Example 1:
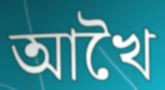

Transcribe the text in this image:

আখৈ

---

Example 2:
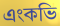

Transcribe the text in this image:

এংকভি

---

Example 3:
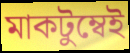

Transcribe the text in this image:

মাকটুম্বেই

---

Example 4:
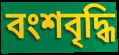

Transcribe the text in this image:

বংশবৃদ্ধি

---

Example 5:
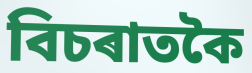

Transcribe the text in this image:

বিচৰাতকৈ